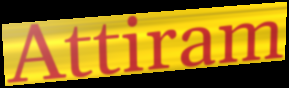
Attiram